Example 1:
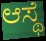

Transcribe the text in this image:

ಆಸ್ಥೆ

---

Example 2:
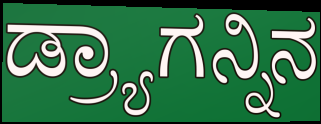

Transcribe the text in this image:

ಡ್ರ್ಯಾಗನ್ನಿನ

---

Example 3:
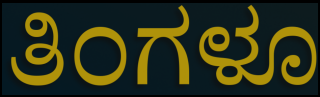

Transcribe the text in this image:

ತಿಂಗಳೂ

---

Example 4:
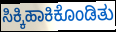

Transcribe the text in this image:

ಸಿಕ್ಕಿಹಾಕಿಕೊಂಡಿತು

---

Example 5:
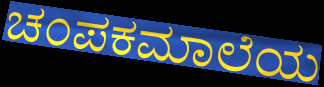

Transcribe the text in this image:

ಚಂಪಕಮಾಲೆಯ